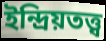
ইন্দ্রিয়তত্ত্ব